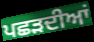
ਪਛੜਦੀਆਂ